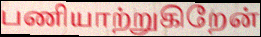
பணியாற்றுகிறேன்